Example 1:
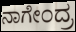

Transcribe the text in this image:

ನಾಗೇಂದ್ರ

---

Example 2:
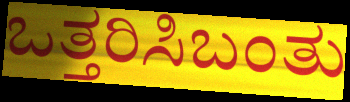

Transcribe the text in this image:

ಒತ್ತರಿಸಿಬಂತು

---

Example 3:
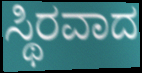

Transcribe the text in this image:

ಸ್ಥಿರವಾದ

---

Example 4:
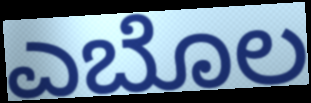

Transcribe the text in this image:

ಎಬೊಲ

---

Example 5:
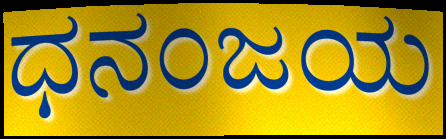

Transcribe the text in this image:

ಧನಂಜಯ